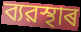
ব্যৱস্থাৰ